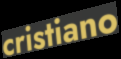
cristiano